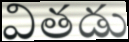
వితడు